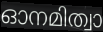
ഓനമിത്വാ